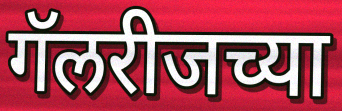
गॅलरीजच्या